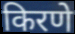
किरणे